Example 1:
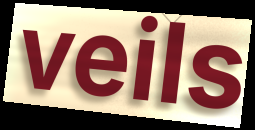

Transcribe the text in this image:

veils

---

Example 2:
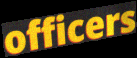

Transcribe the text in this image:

officers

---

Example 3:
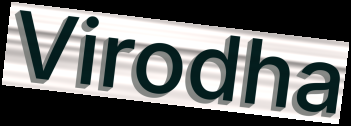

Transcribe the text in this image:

Virodha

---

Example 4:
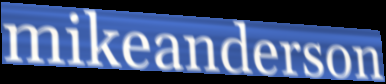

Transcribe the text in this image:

mikeanderson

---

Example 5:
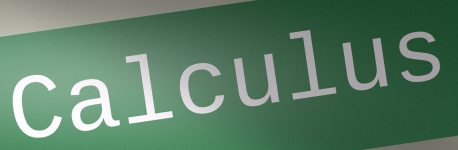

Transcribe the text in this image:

Calculus